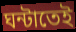
ঘন্টাতেই